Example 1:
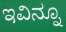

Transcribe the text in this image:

ಇವಿನ್ನೂ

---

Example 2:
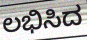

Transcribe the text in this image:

ಲಭಿಸಿದ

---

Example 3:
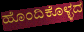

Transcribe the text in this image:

ಹೊಂದಿಕೊಳ್ಳದ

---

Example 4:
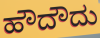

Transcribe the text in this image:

ಹೌದೌದು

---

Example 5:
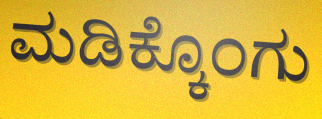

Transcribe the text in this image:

ಮಡಿಕ್ಕೊಂಗು